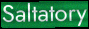
Saltatory